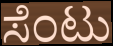
ಸೆಂಟು